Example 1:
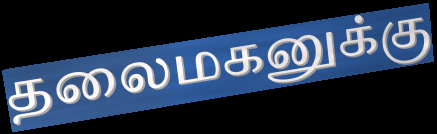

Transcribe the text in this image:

தலைமகனுக்கு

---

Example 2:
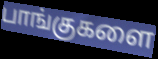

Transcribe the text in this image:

பாங்குகளை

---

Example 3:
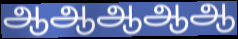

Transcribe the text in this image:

ஆஆஆஆஆ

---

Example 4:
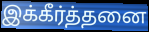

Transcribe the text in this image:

இக்கீர்த்தனை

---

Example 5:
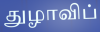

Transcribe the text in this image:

துழாவிப்